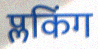
प्लकिंग